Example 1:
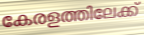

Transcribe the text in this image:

കേരളത്തിലേക്ക്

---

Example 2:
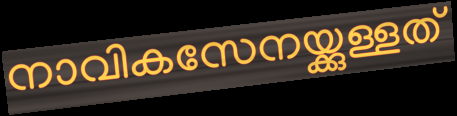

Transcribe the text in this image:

നാവികസേനയ്ക്കുള്ളത്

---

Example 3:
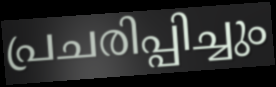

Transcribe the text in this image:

പ്രചരിപ്പിച്ചും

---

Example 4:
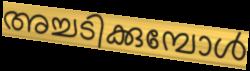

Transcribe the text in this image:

അച്ചടിക്കുമ്പോൾ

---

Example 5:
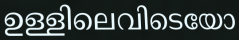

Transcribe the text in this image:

ഉള്ളിലെവിടെയോ